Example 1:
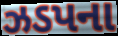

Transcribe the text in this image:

ઝડપના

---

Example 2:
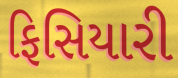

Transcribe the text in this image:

ફિસિયારી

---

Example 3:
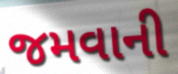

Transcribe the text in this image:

જમવાની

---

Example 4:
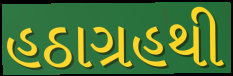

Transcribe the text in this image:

હઠાગ્રહથી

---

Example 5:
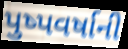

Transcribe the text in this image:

પુષ્પવર્ષાની